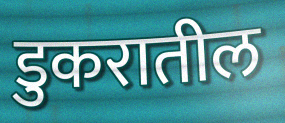
डुकरातील